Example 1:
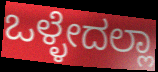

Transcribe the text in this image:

ಒಳ್ಳೇದಲ್ಲಾ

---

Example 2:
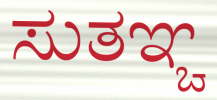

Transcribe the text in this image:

ಸುತಞ್ಚ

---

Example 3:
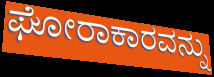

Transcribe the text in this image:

ಘೋರಾಕಾರವನ್ನು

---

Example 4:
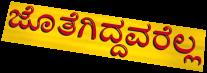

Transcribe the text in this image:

ಜೊತೆಗಿದ್ದವರೆಲ್ಲ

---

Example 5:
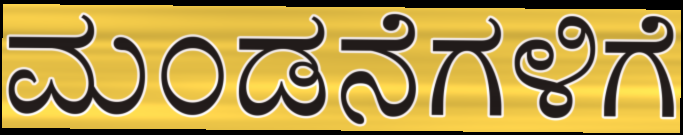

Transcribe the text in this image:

ಮಂಡನೆಗಳಿಗೆ